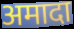
अमादा